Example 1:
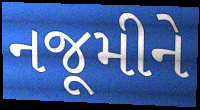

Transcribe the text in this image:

નજૂમીને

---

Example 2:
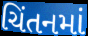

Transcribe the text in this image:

ચિંતનમાં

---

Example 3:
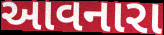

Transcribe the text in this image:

આવનારા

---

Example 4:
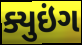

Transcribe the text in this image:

ક્યુઇંગ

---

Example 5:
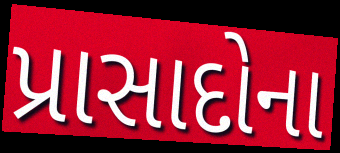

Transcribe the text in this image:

પ્રાસાદોના